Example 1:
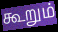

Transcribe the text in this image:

கூறும்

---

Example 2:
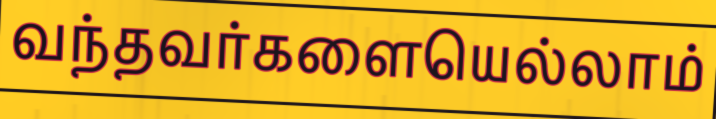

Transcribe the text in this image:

வந்தவர்களையெல்லாம்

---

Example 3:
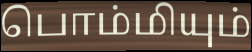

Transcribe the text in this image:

பொம்மியும்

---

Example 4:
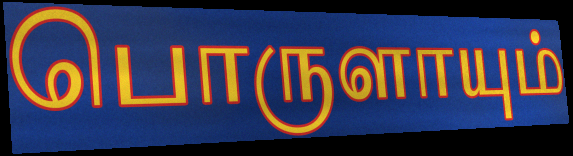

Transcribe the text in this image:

பொருளாயும்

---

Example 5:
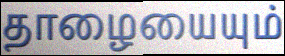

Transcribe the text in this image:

தாழையையும்